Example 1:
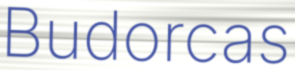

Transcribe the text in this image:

Budorcas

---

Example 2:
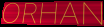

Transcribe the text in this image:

ORHAN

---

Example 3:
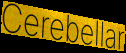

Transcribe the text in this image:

Cerebellar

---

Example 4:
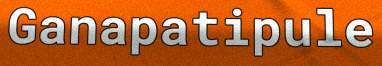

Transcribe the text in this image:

Ganapatipule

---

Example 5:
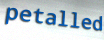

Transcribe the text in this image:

petalled